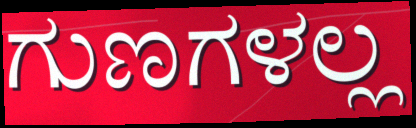
ಗುಣಗಳಲ್ಲ